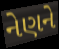
નેણને